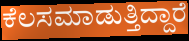
ಕೆಲಸಮಾಡುತ್ತಿದ್ದಾರೆ